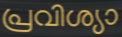
പ്രവിശ്യാ